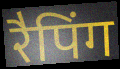
रैपिंग